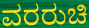
ವರರುಚಿ